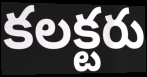
కలక్టరు